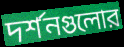
দর্শনগুলোর